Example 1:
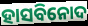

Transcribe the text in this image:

ହାସବିନୋଦ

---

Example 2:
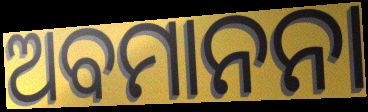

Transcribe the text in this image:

ଅବମାନନା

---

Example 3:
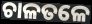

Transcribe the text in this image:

ଚାଳତଳେ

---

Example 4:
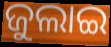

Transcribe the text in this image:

ଜୁଲାଇ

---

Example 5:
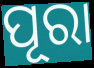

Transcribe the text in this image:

ପୂରା